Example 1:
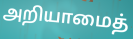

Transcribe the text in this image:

அறியாமைத்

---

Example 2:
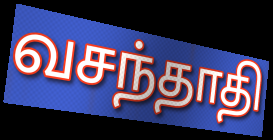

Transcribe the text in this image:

வசந்தாதி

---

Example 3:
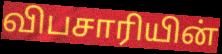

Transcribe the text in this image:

விபசாரியின்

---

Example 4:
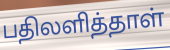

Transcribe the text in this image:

பதிலளித்தாள்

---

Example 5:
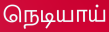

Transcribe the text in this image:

நெடியாய்